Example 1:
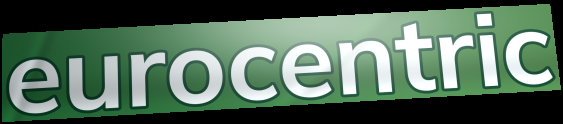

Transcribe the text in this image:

eurocentric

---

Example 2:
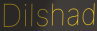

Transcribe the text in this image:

Dilshad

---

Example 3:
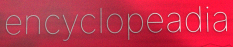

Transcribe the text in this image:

encyclopeadia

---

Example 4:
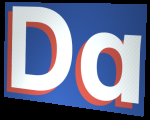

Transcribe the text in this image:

Da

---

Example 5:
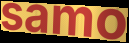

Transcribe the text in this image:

samo